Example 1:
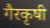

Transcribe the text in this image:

गैरकृषी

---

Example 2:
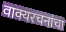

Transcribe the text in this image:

वाक्यरचनांचा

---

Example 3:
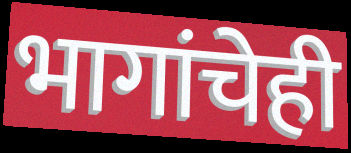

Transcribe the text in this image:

भागांचेही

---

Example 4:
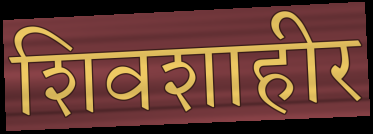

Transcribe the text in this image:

शिवशाहीर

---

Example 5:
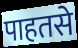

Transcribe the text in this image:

पाहतसे